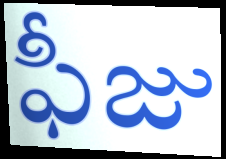
ఫీజు